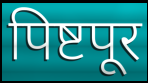
पिष्टपूर